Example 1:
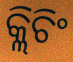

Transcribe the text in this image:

କ୍ଲିଚିଂ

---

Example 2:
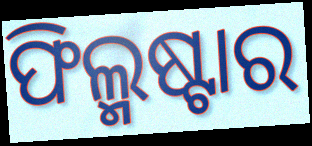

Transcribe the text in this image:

ଫିଲ୍ମଷ୍ଟାର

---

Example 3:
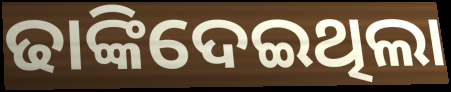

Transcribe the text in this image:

ଢାଙ୍କିଦେଇଥିଲା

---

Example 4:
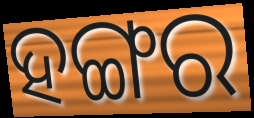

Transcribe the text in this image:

ହଙ୍ଗର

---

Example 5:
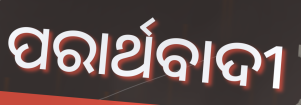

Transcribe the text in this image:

ପରାର୍ଥବାଦୀ